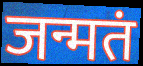
जन्मतं